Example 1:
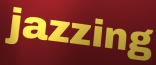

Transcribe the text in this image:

jazzing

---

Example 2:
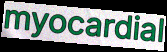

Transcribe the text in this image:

myocardial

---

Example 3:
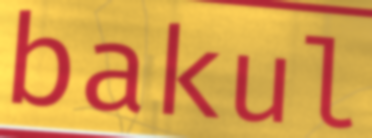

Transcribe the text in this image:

bakul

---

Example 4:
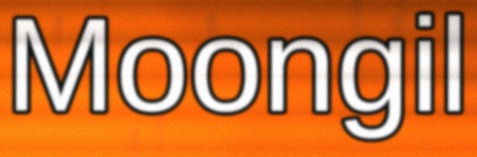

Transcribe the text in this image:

Moongil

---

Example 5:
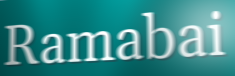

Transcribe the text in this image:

Ramabai